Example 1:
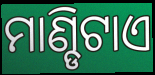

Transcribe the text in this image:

ମାଣ୍ଡିଟାଏ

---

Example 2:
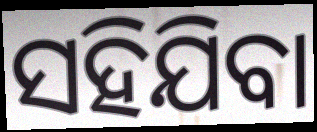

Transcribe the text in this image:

ସହିଯିବା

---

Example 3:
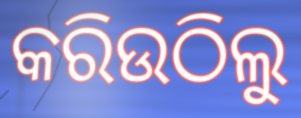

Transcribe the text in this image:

କରିଉଠିଲୁ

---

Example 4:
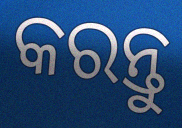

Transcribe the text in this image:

କରନ୍ତୁ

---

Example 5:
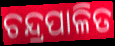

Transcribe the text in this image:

ଚନ୍ଦ୍ରପାଳିତ